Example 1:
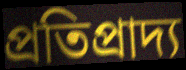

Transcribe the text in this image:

প্ৰতিপ্ৰাদ্য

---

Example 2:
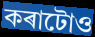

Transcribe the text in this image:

কৰাটোও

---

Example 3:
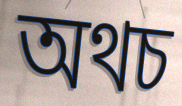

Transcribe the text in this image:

অথচ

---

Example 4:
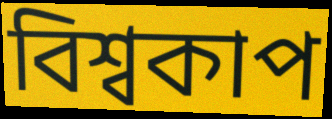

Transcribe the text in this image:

বিশ্বকাপ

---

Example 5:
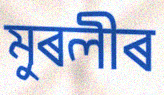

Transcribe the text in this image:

মুৰলীৰ